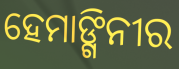
ହେମାଙ୍ଗିନୀର